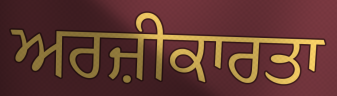
ਅਰਜ਼ੀਕਾਰਤਾ